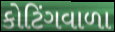
કોટિંગવાળા